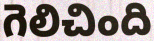
గెలిచింది